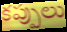
కప్పులు